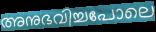
അനുഭവിച്ചപോലെ